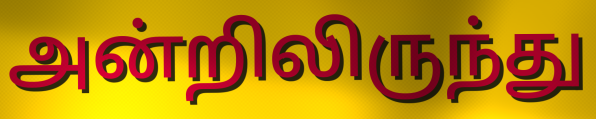
அன்றிலிருந்து